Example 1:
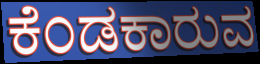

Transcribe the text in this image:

ಕೆಂಡಕಾರುವ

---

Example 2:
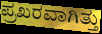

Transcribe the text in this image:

ಪ್ರಖರವಾಗಿತ್ತು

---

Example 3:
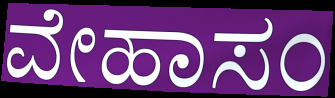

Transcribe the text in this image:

ವೇಹಾಸಂ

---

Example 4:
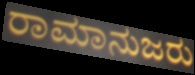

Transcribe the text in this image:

ರಾಮಾನುಜರು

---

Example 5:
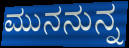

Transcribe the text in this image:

ಮುನನುನ್ನ